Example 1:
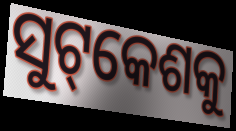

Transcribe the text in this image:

ସୁଟ୍‌କେଶକୁ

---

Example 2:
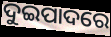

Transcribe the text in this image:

ଦୁଇପାଦରେ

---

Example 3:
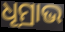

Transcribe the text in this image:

ଧୂମ୍ରାଭ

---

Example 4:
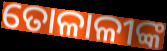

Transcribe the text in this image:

ତୋଳାଳୀଙ୍କ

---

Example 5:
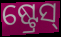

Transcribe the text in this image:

ଷ୍ଟ୍ରେସ୍